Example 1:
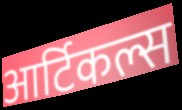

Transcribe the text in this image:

आर्टिकल्स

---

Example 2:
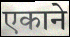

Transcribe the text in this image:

एकाने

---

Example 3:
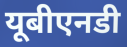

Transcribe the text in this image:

यूबीएनडी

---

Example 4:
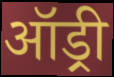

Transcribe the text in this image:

ऑड्री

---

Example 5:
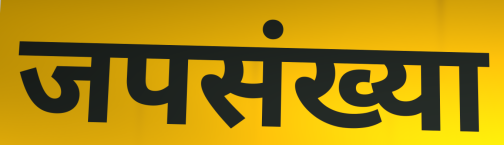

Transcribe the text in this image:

जपसंख्या